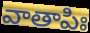
వాతాపిః